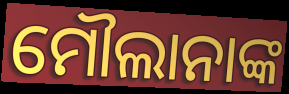
ମୌଲାନାଙ୍କ